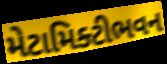
મેટામિક્ટીભવન